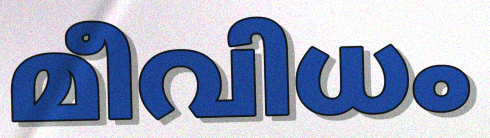
മീവിധം